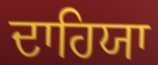
ਦਾਹਿਯਾ